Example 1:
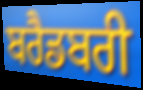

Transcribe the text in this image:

ਬਰੈਡਬਰੀ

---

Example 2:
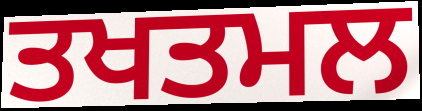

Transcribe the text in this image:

ਤਖਤਮਲ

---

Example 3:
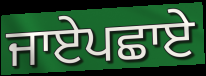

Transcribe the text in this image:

ਜਾਏਪਛਾਏ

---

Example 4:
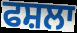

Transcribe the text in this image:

ਫਸ਼ਲਾ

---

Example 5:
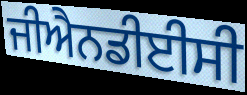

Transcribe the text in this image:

ਜੀਐਨਡੀਈਸੀ